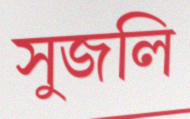
সুজলি